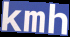
kmh